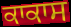
ਕਾਕਾਸ